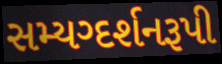
સમ્યગ્દર્શનરૂપી